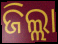
ଜିଲ୍ଲା